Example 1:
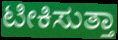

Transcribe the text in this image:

ಟೀಕಿಸುತ್ತಾ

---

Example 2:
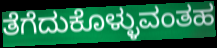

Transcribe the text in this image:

ತೆಗೆದುಕೊಳ್ಳುವಂತಹ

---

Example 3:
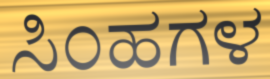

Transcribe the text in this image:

ಸಿಂಹಗಳ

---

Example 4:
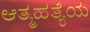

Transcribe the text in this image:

ಆತ್ಮಹತ್ಯೆಯ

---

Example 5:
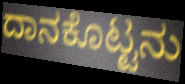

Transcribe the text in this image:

ದಾನಕೊಟ್ಟನು